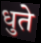
धुते